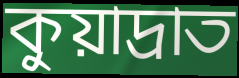
কুয়াদ্রাত